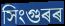
সিংগুৰৰ